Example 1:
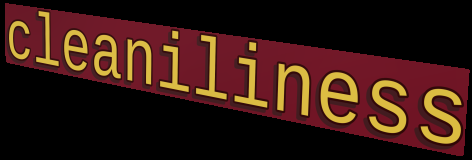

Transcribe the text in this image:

cleaniliness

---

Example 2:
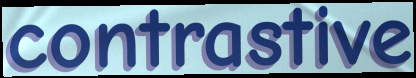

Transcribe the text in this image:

contrastive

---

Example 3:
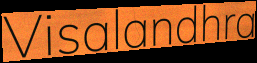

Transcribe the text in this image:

Visalandhra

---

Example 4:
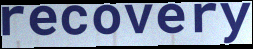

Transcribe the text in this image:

recovery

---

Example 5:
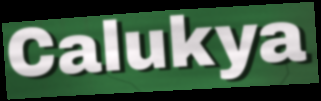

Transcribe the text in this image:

Calukya